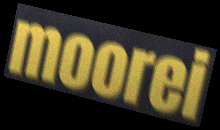
moorei